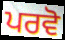
ਪਰਵੋ